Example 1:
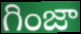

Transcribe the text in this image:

గింజా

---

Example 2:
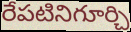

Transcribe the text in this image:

రేపటినిగూర్చి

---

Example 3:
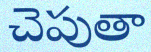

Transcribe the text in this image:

చెపుతా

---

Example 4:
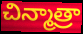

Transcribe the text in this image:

చిన్మాత్రా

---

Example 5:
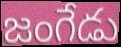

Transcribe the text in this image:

జంగేడు